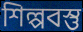
শিল্পবস্তু